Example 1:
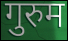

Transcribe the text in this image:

गुरुम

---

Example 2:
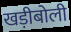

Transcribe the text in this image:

खड़ीबोली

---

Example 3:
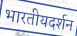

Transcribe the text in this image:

भारतीयदर्शन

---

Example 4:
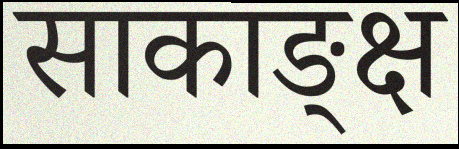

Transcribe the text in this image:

साकाङ्क्ष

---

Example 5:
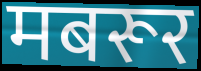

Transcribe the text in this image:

मबरूर